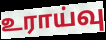
உராய்வு